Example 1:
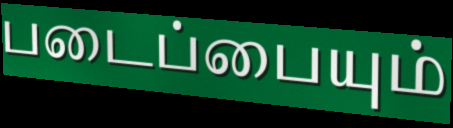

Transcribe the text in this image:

படைப்பையும்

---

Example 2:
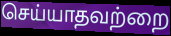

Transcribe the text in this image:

செய்யாதவற்றை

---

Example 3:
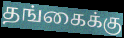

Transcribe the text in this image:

தங்கைக்கு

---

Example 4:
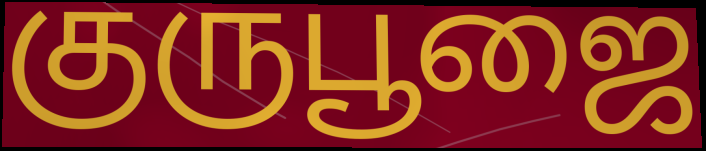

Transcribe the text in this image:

குருபூஜை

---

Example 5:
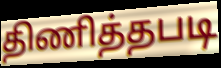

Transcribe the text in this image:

திணித்தபடி